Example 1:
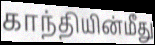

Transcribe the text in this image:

காந்தியின்மீது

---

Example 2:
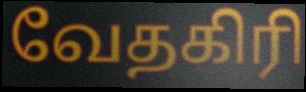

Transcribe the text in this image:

வேதகிரி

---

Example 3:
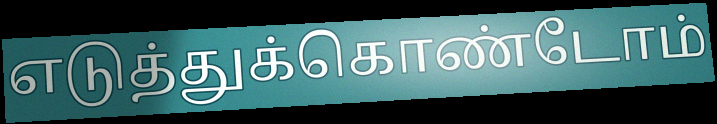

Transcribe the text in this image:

எடுத்துக்கொண்டோம்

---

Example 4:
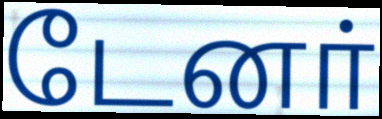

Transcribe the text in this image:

டேனர்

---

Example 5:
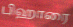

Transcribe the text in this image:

பிஹாரை